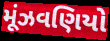
મૂંઝવણિયો